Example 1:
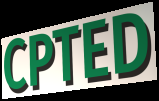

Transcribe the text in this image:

CPTED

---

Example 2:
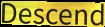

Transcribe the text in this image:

Descend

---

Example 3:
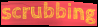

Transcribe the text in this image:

scrubbing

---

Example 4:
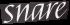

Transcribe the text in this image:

snare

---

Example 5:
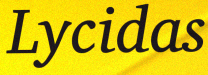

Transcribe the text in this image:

Lycidas